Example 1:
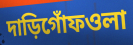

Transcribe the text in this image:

দাড়িগোঁফওলা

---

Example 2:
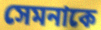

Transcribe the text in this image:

সেমনাকে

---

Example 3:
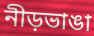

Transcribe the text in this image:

নীড়ভাঙা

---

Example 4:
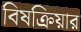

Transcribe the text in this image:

বিষক্রিয়ার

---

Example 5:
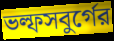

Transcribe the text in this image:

ভল্ফসবুর্গের